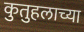
कुतुहलाच्या